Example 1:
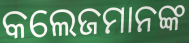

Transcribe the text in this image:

କଲେଜମାନଙ୍କ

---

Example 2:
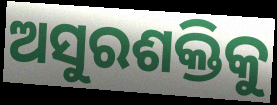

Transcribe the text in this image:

ଅସୁରଶକ୍ତିକୁ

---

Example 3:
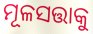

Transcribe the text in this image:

ମୂଳସତ୍ତାକୁ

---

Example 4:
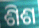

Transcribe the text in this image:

ଶିଶ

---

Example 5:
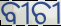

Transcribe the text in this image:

ବୀଚୀ